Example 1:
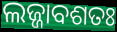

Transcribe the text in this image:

ଲଜ୍ଜାବଶତଃ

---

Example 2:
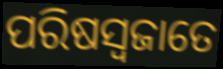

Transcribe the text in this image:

ପରିଷସ୍ଵଜାତେ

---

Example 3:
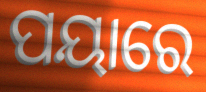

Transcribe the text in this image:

ପୟାରେ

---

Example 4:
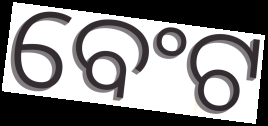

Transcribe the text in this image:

ବେଂଟ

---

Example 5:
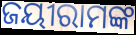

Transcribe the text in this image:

ଜୟୀରାମଙ୍କ